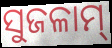
ସୁଜଳାମ୍